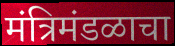
मंत्रिमंडळाचा